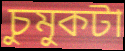
চুমুকটা